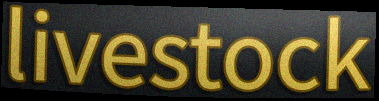
livestock